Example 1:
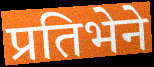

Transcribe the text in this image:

प्रतिभेने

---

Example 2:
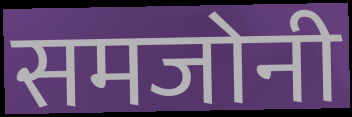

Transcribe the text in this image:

समजोनी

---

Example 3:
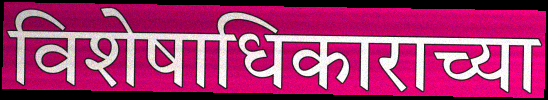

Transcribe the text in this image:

विशेषाधिकाराच्या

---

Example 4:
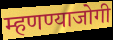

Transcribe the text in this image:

म्हणण्याजोगी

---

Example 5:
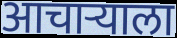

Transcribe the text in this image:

आचाऱ्याला